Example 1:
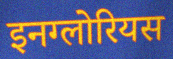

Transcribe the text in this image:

इनग्लोरियस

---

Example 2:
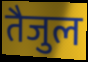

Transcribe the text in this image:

तैजुल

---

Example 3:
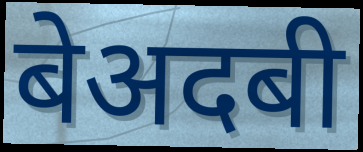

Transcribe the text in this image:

बेअदबी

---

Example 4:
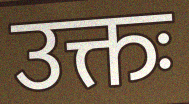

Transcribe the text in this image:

उक्तः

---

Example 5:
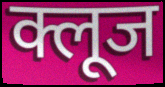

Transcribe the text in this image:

क्लूज